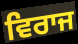
ਵਿਰਾਜ